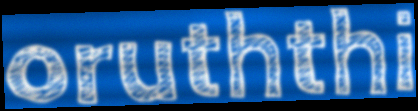
oruththi